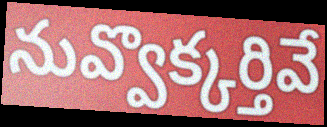
నువ్వొక్కర్తివే